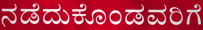
ನಡೆದುಕೊಂಡವರಿಗೆ